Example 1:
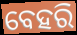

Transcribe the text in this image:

ବେହରି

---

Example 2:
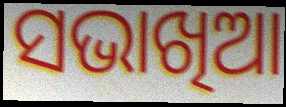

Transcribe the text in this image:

ସଭାଖିଆ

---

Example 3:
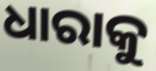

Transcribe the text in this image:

ଧାରାକୁ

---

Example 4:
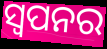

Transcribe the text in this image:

ସ୍ୱପନର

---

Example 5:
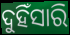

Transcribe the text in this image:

ଦୁହିଁସାରି